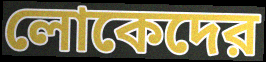
লোকেদের